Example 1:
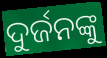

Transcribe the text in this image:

ଦୁର୍ଜନଙ୍କୁ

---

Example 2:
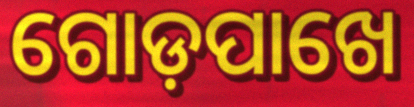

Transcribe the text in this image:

ଗୋଡ଼ପାଖେ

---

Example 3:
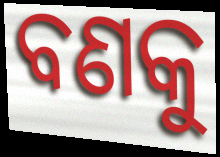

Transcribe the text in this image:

ବଣକୁ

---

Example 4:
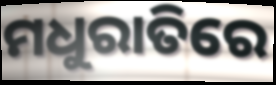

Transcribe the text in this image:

ମଧୁରାତିରେ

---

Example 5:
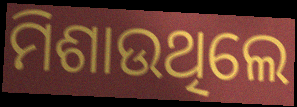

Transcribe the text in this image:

ମିଶାଉଥିଲେ